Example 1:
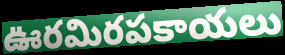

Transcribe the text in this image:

ఊరమిరపకాయలు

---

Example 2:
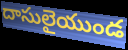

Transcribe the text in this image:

దాసులైయుండ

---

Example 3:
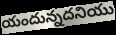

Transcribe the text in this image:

యందున్నదనియు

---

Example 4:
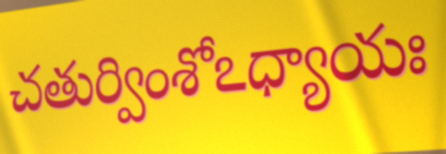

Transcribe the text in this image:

చతుర్వింశోఽధ్యాయః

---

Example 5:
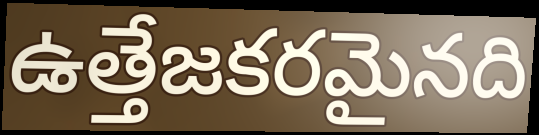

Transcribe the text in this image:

ఉత్తేజకరమైనది